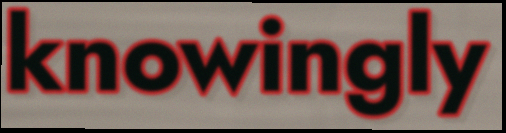
knowingly